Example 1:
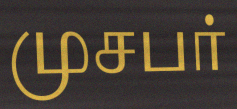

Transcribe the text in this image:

முசபர்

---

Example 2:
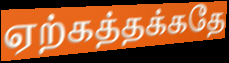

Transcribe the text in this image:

ஏற்கத்தக்கதே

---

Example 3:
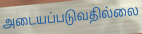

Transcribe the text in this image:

அடையப்படுவதில்லை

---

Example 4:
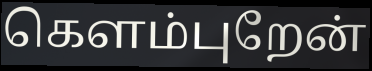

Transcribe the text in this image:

கெளம்புறேன்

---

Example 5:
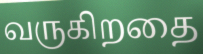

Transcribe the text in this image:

வருகிறதை